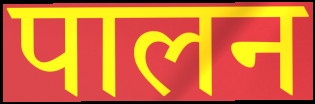
पालन